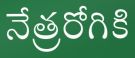
నేత్రరోగికి